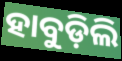
ହାବୁଡ଼ିଲି